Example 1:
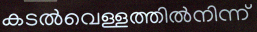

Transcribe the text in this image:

കടൽവെള്ളത്തിൽനിന്ന്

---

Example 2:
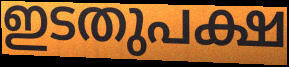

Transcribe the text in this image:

ഇടതുപക്ഷ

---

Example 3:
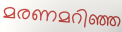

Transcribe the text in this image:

മരണമറിഞ്ഞ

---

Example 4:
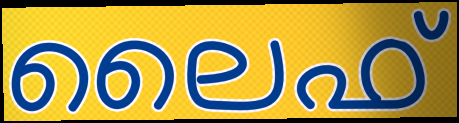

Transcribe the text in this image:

ലൈഫ്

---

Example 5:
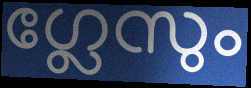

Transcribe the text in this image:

ഗ്ലേസും